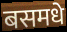
बसमधे